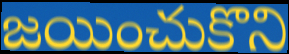
జయించుకొని